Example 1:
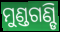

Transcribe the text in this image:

ମୁଣ୍ଡଗଣ୍ଡି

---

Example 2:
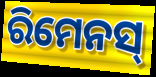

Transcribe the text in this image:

ରିମେନସ୍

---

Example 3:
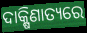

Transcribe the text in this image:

ଦାକ୍ଷିଣାତ୍ୟରେ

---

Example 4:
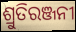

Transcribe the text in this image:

ଶ୍ରୁତିରଞ୍ଜନୀ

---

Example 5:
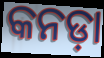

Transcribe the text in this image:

କନଡ଼ା